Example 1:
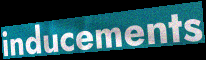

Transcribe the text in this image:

inducements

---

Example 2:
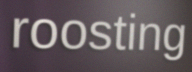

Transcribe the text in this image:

roosting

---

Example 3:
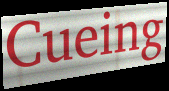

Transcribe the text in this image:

Cueing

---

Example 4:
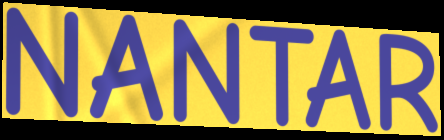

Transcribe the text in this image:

NANTAR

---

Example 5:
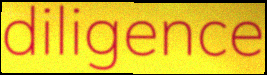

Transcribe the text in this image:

diligence